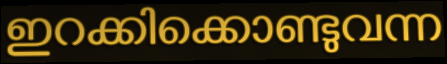
ഇറക്കിക്കൊണ്ടുവന്ന